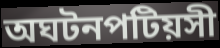
অঘটনপটিয়সী